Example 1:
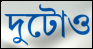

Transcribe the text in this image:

দুটোও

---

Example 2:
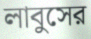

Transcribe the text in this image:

লাবুসের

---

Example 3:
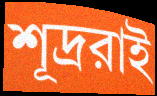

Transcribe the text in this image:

শূদ্ররাই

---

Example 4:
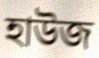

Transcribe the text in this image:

হাউজ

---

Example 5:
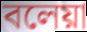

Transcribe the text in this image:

বলেয়া